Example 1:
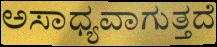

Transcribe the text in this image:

ಅಸಾಧ್ಯವಾಗುತ್ತದೆ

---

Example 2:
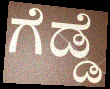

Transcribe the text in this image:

ಗೆಡ್ಡೆ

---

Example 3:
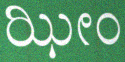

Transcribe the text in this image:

ಝೀಂ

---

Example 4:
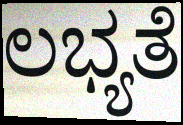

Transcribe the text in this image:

ಲಭ್ಯತೆ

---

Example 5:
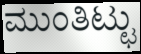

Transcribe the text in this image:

ಮುಂತಿಟ್ಟು